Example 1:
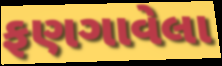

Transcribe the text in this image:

ફણગાવેલા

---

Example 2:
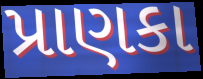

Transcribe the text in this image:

પ્રાણકા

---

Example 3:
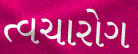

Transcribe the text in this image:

ત્વચારોગ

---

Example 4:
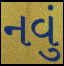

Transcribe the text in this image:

નવું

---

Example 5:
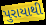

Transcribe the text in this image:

પુરાયાથી